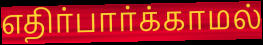
எதிர்பார்க்காமல்